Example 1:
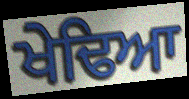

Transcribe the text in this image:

ਖੇਢਿਆ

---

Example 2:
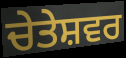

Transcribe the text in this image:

ਚੇਤੇਸ਼ਵਰ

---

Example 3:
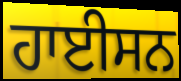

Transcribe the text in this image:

ਹਾਈਸਨ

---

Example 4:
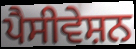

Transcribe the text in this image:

ਪੈਸੀਵੇਸ਼ਨ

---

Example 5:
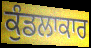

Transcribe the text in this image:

ਕੁੰਡਲਾਕਾਰ